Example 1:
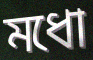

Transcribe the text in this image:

মধো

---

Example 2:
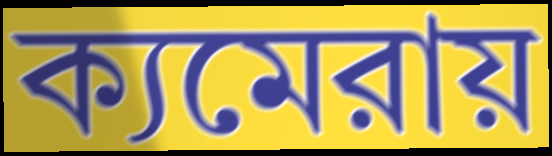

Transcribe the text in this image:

ক্যমেরায়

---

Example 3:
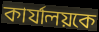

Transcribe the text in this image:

কার্যালয়কে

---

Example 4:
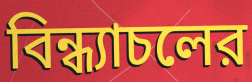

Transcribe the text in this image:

বিন্ধ্যাচলের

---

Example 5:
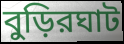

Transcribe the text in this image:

বুড়িরঘাট